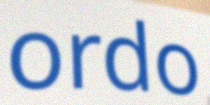
ordo